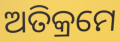
ଅତିକ୍ରମେ